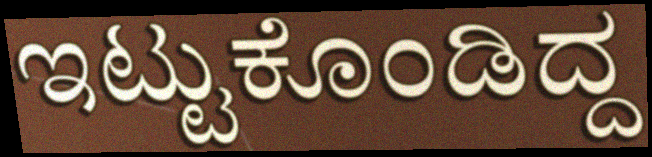
ಇಟ್ಟುಕೊಂಡಿದ್ದ